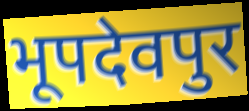
भूपदेवपुर